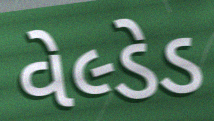
વેલ્ડેડ